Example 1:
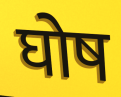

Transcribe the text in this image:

घोष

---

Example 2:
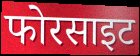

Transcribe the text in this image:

फोरसाइट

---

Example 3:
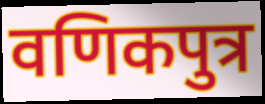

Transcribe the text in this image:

वणिकपुत्र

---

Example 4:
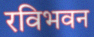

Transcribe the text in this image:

रविभवन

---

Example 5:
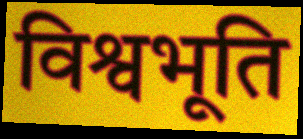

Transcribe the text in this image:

विश्वभूति